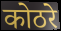
कोठरे